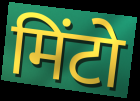
मिंटो